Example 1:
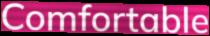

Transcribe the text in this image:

Comfortable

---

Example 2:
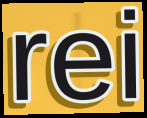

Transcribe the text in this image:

rei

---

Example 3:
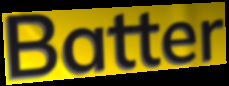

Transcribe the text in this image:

Batter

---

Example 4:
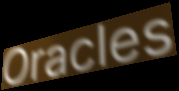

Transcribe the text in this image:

Oracles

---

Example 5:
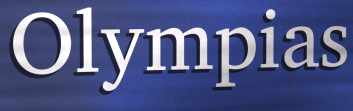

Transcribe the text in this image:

Olympias